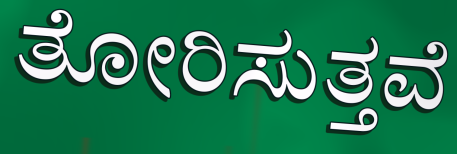
ತೋರಿಸುತ್ತವೆ